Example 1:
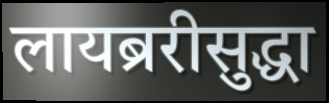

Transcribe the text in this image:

लायब्ररीसुद्धा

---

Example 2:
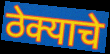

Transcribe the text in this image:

ठेक्याचे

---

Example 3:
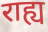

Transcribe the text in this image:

राह्य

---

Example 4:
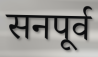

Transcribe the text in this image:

सनपूर्व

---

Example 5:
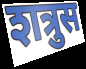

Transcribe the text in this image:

शत्रुस